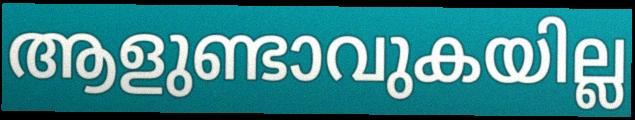
ആളുണ്ടാവുകയില്ല